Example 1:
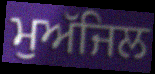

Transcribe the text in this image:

ਮੁਅੱਜਿਲ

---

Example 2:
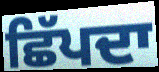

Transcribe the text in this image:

ਛਿੱਪਦਾ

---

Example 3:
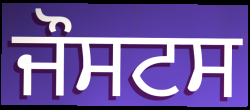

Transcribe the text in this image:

ਜੌਸਟਸ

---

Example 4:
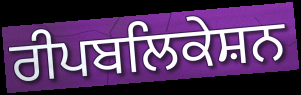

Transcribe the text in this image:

ਰੀਪਬਲਿਕੇਸ਼ਨ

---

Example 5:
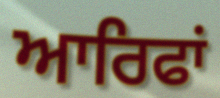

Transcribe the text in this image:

ਆਰਿਫਾਂ